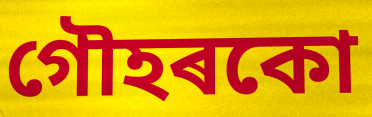
গৌহৰকো